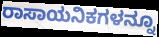
ರಾಸಾಯನಿಕಗಳನ್ನೂ